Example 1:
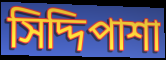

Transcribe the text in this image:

সিদ্দিপাশা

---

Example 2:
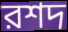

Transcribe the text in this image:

রশদ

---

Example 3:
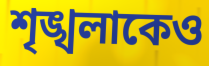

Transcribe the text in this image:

শৃঙ্খলাকেও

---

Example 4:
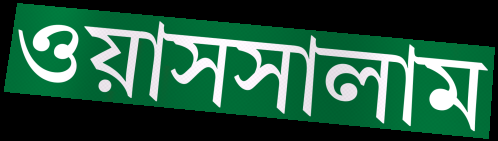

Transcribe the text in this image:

ওয়াসসালাম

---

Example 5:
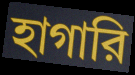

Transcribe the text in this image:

হাগারি